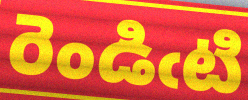
రెండిఁటి